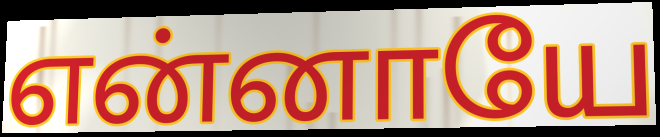
என்னாயே